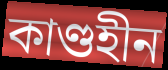
কাণ্ডহীন